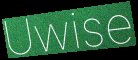
Uwise